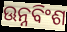
ଊନ୍ନବିଂଶ